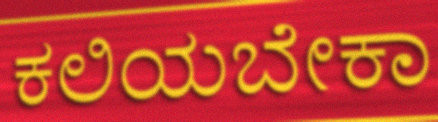
ಕಲಿಯಬೇಕಾ